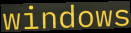
windows